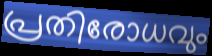
പ്രതിരോധവും